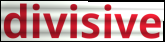
divisive